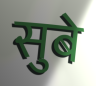
सुबे